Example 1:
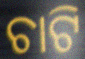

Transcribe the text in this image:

ଚାଟି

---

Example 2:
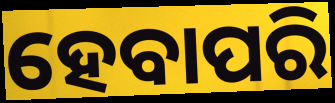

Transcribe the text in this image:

ହେବାପରି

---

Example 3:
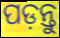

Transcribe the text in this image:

ପଡ଼ନ୍ତୁ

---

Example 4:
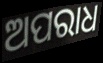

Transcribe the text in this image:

ଅପରାଧ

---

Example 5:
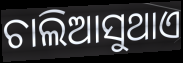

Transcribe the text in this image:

ଚାଲିଆସୁଥାଏ